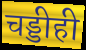
चड्डीही